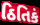
ઠિતિકં